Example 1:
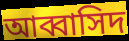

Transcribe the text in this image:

আব্বাসিদ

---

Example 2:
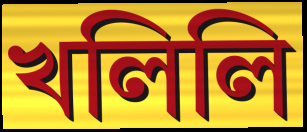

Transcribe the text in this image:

খলিলি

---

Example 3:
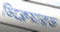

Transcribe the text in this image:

ডিক্লেয়ারড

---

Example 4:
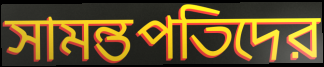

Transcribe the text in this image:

সামন্তপতিদের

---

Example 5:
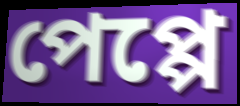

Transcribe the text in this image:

পেপ্পে